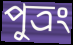
পুত্রং